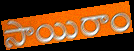
సాయిరాం